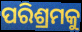
ପରିଶ୍ରମକୁ